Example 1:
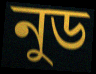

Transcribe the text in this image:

নুড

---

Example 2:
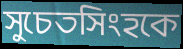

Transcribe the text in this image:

সুচেতসিংহকে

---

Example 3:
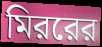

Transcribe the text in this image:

মিররের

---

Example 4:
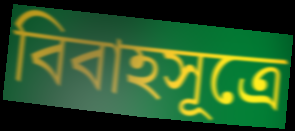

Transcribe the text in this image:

বিবাহসূত্রে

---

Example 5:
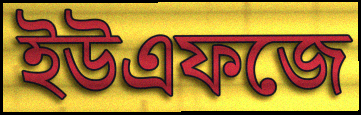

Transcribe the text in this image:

ইউএফজে